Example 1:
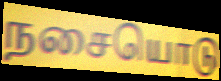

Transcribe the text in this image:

நசையொடு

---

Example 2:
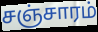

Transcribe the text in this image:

சஞ்சாரம்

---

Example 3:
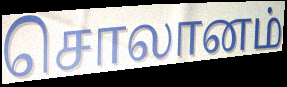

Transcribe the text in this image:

சொலானம்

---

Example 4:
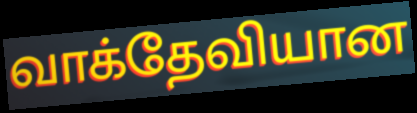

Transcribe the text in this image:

வாக்தேவியான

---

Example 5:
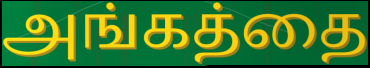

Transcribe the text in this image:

அங்கத்தை